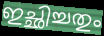
ഇച്ഛിച്ചതും